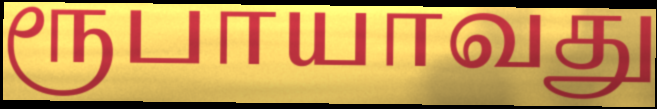
ரூபாயாவது